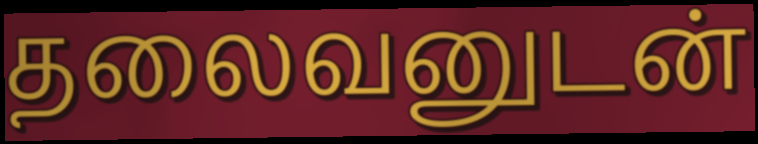
தலைவனுடன்